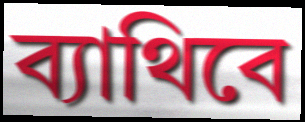
ব্যাথিবে